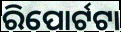
ରିପୋର୍ଟଟା